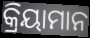
କ୍ରିୟାମାନ